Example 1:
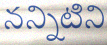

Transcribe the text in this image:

నన్నిటిని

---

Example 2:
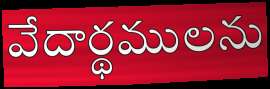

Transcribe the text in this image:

వేదార్థములను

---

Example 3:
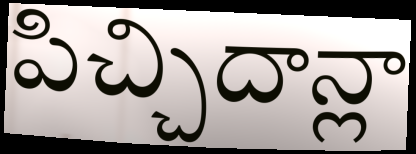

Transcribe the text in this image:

పిచ్చిదాన్లా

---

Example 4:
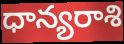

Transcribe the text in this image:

ధాన్యరాశి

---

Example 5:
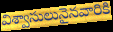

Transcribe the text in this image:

విశ్వాసులునైనవారికి